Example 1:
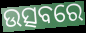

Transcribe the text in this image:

ଉତ୍ସବରେ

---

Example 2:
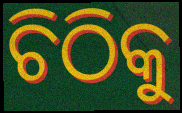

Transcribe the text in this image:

ଚିଠିକୁ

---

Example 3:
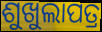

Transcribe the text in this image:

ଶୁଖୁଲାପତ୍ର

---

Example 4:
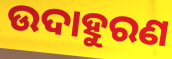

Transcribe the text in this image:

ଉଦାହୁରଣ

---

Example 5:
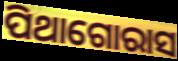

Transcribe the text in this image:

ପିଥାଗୋରାସ